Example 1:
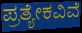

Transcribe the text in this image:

ಪ್ರತ್ಯೇಕವಿವೆ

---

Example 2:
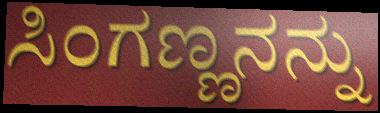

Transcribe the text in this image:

ಸಿಂಗಣ್ಣನನ್ನು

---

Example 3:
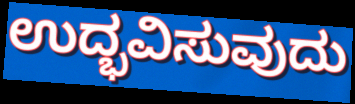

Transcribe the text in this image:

ಉದ್ಭವಿಸುವುದು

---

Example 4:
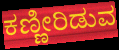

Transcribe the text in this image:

ಕಣ್ಣೀರಿಡುವ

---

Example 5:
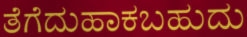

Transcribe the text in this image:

ತೆಗೆದುಹಾಕಬಹುದು